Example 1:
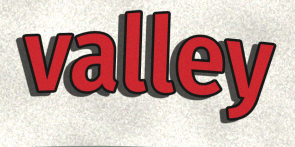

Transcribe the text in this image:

valley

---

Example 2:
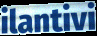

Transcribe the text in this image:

ilantivi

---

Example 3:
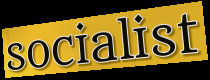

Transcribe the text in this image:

socialist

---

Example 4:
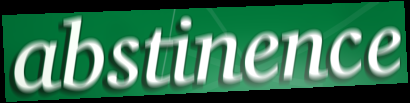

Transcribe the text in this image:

abstinence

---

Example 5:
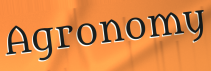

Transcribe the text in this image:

Agronomy